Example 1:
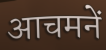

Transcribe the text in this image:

आचमनें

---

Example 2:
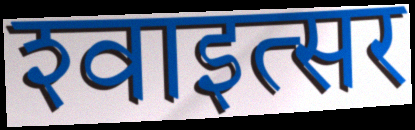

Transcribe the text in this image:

श्वाइत्सर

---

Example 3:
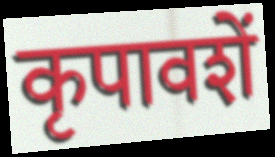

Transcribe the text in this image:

कृपावशें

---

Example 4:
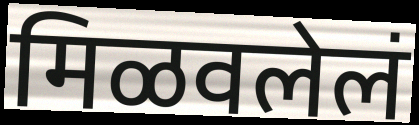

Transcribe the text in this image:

मिळवलेलं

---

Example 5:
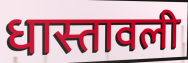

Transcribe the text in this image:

धास्तावली